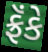
ફ્રૅંકે